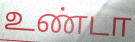
உண்டா